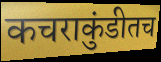
कचराकुंडीतच